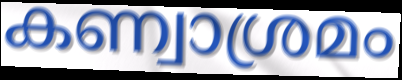
കണ്വാശ്രമം